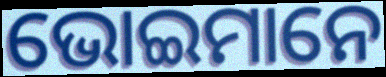
ଭୋଇମାନେ